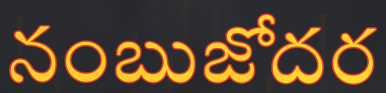
నంబుజోదర